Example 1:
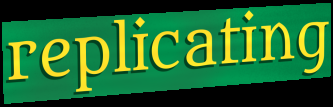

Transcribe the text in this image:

replicating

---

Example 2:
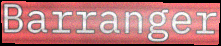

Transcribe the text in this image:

Barranger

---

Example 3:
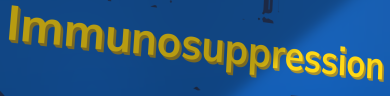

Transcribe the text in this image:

Immunosuppression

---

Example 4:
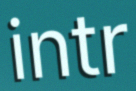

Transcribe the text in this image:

intr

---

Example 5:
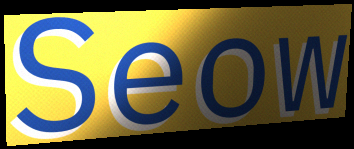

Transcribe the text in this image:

Seow